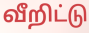
வீறிட்டு